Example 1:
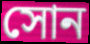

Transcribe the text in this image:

সোন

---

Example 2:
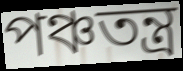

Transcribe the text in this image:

পঞ্চতন্ত্ৰ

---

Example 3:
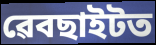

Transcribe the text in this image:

ৱেবছাইটত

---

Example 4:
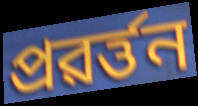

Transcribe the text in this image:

প্ৰৱৰ্ত্তন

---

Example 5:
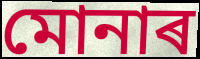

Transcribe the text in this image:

মোনাৰ